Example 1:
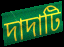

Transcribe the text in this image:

দাদাটি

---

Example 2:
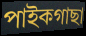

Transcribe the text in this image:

পাইকগাছা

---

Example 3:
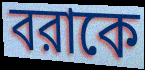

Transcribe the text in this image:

বরাকে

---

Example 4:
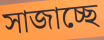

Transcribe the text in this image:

সাজাচ্ছে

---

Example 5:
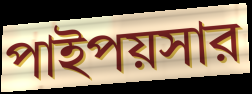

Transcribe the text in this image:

পাইপয়সার